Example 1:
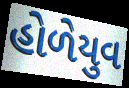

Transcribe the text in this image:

હોળેયુવ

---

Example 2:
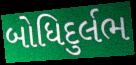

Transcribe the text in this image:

બોધિદુર્લભ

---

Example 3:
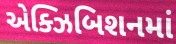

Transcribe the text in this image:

એક્ઝિબિશનમાં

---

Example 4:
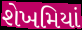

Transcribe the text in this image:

શેખમિયાં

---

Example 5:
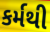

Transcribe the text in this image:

કર્મથી